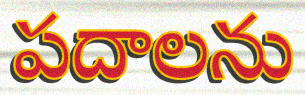
పదాలను